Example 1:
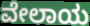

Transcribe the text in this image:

ವೇಲಾಯ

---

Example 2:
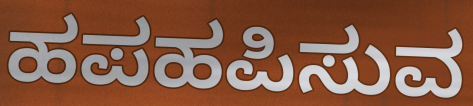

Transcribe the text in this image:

ಹಪಹಪಿಸುವ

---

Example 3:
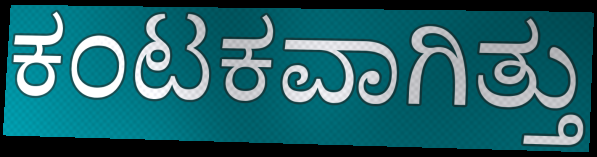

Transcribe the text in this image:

ಕಂಟಕವಾಗಿತ್ತು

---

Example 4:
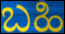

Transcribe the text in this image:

ಬಹಿ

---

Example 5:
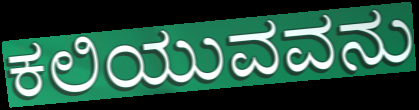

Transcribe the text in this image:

ಕಲಿಯುವವನು